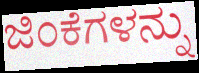
ಜಿಂಕೆಗಳನ್ನು